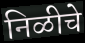
निळीचे